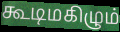
கூடிமகிழும்